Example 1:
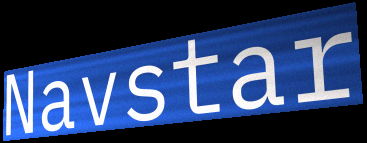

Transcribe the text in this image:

Navstar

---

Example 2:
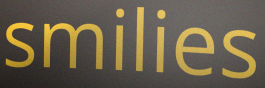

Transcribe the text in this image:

smilies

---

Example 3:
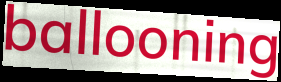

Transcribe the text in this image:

ballooning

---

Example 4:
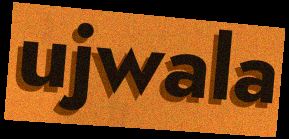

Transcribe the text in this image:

ujwala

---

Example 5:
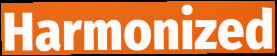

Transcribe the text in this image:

Harmonized